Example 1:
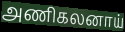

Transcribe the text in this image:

அணிகலனாய்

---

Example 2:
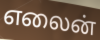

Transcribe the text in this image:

எலைன்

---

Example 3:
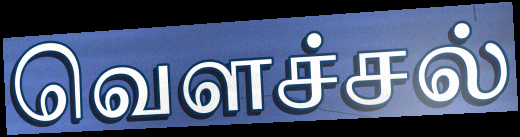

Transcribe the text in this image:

வெளச்சல்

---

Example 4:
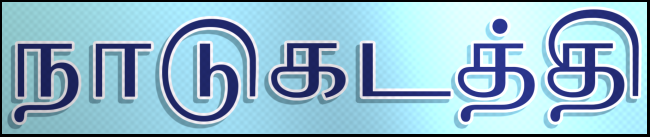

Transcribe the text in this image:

நாடுகடத்தி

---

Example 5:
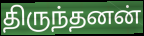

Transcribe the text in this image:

திருந்தனன்